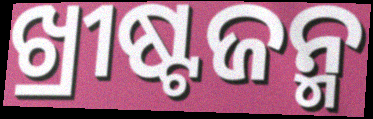
ଖ୍ରୀଷ୍ଟଜନ୍ମ